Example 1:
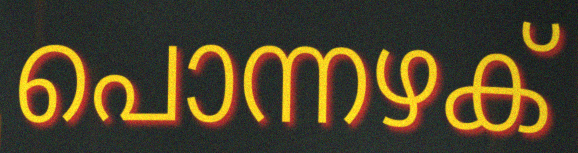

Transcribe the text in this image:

പൊന്നഴക്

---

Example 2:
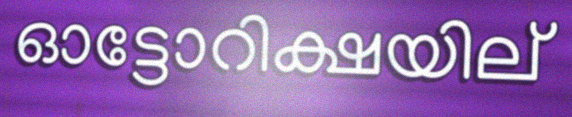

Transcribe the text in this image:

ഓട്ടോറിക്ഷയില്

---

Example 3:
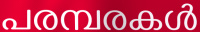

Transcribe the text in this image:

പരമ്പരകൾ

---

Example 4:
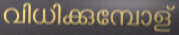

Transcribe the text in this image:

വിധിക്കുമ്പോള്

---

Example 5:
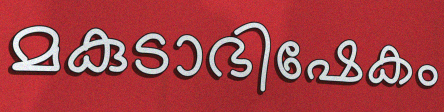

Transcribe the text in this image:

മകുടാഭിഷേകം